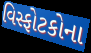
વિસ્ફોટકોના